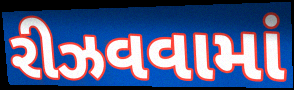
રીઝવવામાં